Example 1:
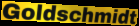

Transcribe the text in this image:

Goldschmidt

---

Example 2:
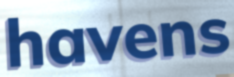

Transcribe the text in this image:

havens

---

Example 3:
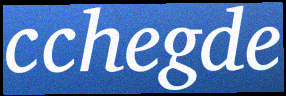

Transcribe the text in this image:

cchegde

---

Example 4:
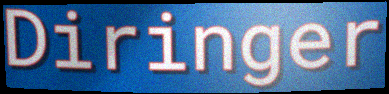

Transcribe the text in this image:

Diringer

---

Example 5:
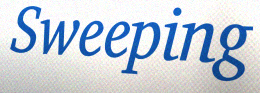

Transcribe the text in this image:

Sweeping